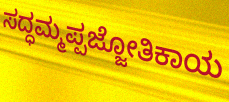
ಸದ್ಧಮ್ಮಪ್ಪಜ್ಜೋತಿಕಾಯ